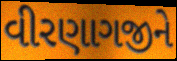
વીરણાગજીને